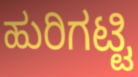
ಹುರಿಗಟ್ಟಿ